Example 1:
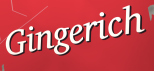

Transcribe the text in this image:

Gingerich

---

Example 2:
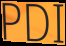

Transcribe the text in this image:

PDI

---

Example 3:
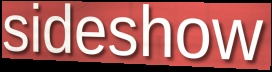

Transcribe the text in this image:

sideshow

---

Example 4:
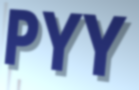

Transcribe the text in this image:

PYY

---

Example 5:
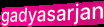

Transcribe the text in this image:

gadyasarjan